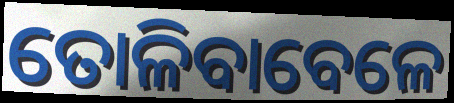
ତୋଳିବାବେଳେ